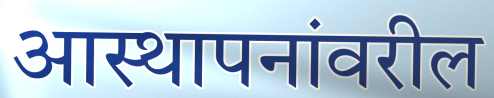
आस्थापनांवरील